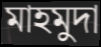
মাহমুদা